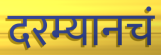
दरम्यानचं